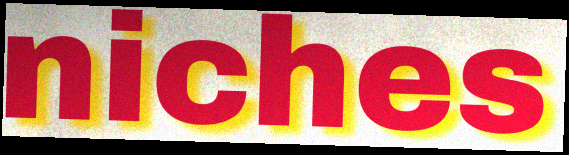
niches